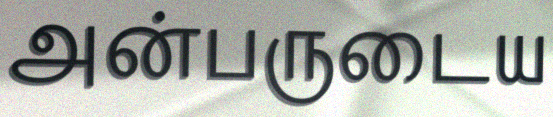
அன்பருடைய